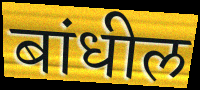
बांधील